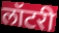
लॉटरी